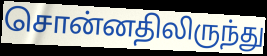
சொன்னதிலிருந்து